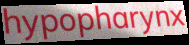
hypopharynx